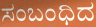
ಸಂಬಂಧಿದ